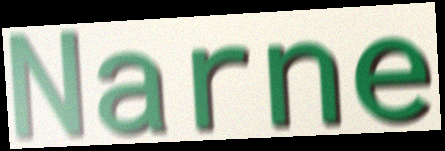
Narne